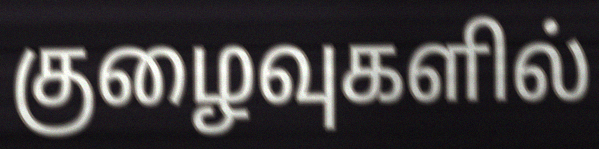
குழைவுகளில்